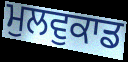
ਮੁਲਵੁਕਾਡ